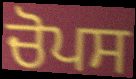
ਚੋਪਸ